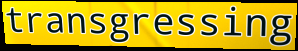
transgressing